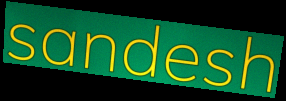
sandesh